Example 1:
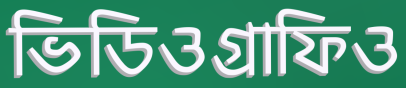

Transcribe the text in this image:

ভিডিওগ্রাফিও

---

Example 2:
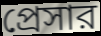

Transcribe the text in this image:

প্রেসার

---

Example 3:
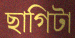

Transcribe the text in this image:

ছাগিটা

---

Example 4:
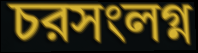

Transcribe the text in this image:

চরসংলগ্ন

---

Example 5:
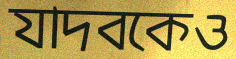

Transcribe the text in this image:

যাদবকেও